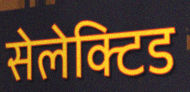
सेलेक्टिड